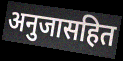
अनुजासहित